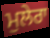
ਮੁਲੇਰਾ